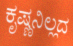
ಕೃಷ್ಣನಿಲ್ಲದ